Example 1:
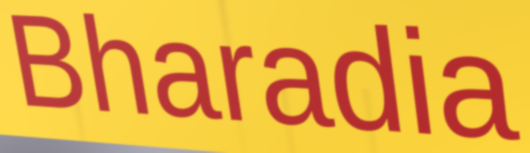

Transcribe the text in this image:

Bharadia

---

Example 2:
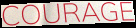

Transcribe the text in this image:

COURAGE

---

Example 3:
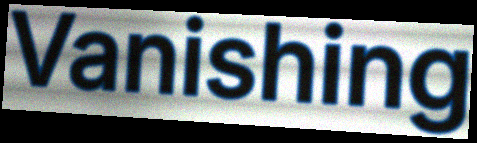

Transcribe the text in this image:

Vanishing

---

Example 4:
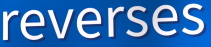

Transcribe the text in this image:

reverses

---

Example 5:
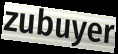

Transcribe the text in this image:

zubuyer